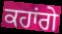
ਕਹਾਂਗੇ